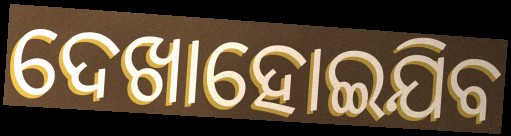
ଦେଖାହୋଇଯିବ